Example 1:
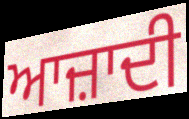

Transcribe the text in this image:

ਆਜ਼ਾਦੀ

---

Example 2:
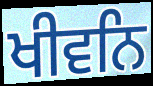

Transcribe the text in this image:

ਖੀਵਨਿ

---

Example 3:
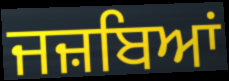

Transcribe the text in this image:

ਜਜ਼ਬਿਆਂ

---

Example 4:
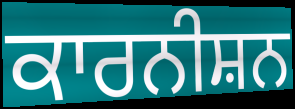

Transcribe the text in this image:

ਕਾਰਨੀਸ਼ਨ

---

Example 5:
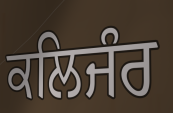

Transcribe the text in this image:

ਕਲਿਜੰਰ